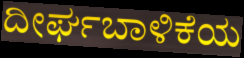
ದೀರ್ಘಬಾಳಿಕೆಯ